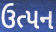
ઉત્પન